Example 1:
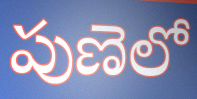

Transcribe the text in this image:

పుణెలో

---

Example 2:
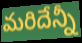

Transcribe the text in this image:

మరిదేన్నీ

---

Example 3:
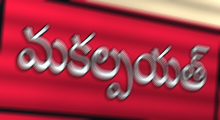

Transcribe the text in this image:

మకల్పయత్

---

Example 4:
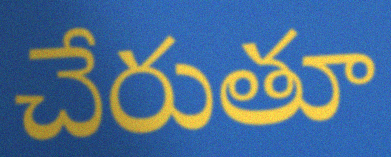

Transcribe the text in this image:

చేరుతూ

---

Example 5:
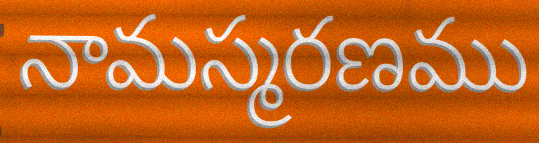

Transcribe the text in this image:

నామస్మరణము